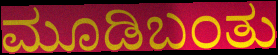
ಮೂಡಿಬಂತು